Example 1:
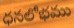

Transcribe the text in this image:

ధనలోభము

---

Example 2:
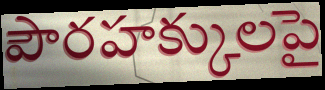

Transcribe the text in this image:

పౌరహక్కులపై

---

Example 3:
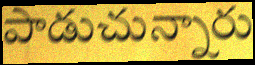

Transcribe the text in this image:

పాడుచున్నారు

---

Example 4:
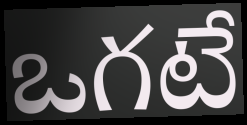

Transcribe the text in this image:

ఒగటే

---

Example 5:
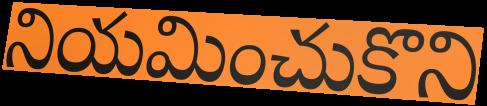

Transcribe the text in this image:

నియమించుకొని